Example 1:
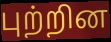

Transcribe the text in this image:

புற்றின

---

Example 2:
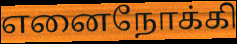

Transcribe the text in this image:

எனைநோக்கி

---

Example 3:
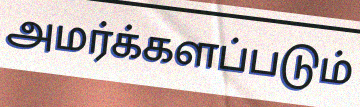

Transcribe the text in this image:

அமர்க்களப்படும்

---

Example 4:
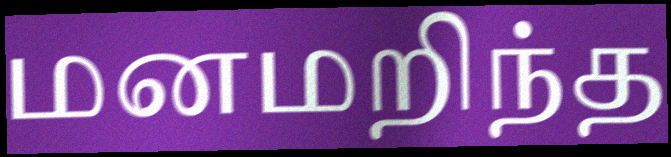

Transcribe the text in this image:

மனமறிந்த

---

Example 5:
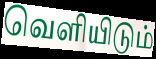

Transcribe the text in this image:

வெளியிடும்